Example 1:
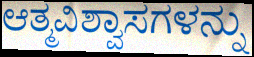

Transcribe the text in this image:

ಆತ್ಮವಿಶ್ವಾಸಗಳನ್ನು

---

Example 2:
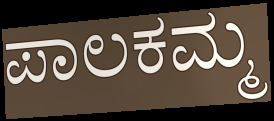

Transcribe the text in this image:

ಪಾಲಕಮ್ಮ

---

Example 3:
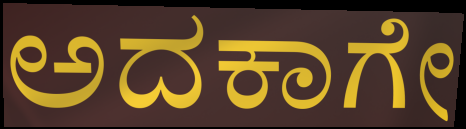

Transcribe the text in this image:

ಅದಕಾಗೇ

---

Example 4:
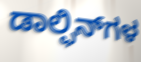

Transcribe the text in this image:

ಡಾಲ್ಫಿನ್‌ಗಳ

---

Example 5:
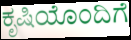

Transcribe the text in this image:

ಕೃಷಿಯೊಂದಿಗೆ